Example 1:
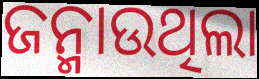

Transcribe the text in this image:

ଜନ୍ମାଉଥିଲା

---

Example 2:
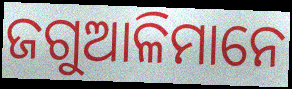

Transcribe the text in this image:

ଜଗୁଆଳିମାନେ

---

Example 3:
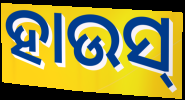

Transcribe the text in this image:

ହାଉସ୍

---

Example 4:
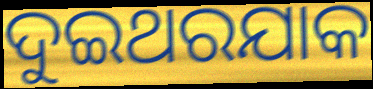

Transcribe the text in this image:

ଦୁଇଥରଯାକ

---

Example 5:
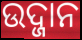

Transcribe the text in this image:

ଉଦ୍ଜାନ